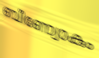
ബീണ്വോകും